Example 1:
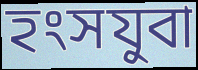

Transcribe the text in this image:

হংসযুবা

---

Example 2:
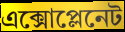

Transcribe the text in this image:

এক্সোপ্লেনেট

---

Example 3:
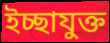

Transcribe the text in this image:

ইচ্ছাযুক্ত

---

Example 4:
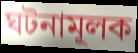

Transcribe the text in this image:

ঘটনামূলক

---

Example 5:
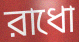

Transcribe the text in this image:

রাধো